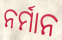
ନର୍ମାନ